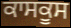
ਕਾਸਕੂਸ